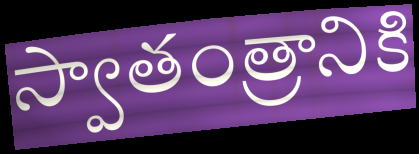
స్వాతంత్రానికి